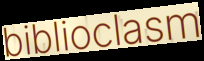
biblioclasm